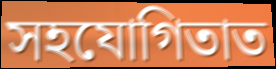
সহযোগিতাত